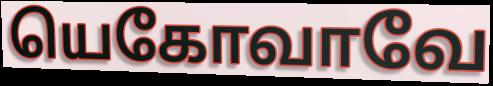
யெகோவாவே